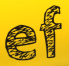
ef